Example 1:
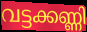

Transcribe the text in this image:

വട്ടക്കണ്ണി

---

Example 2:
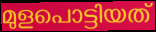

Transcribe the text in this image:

മുളപൊട്ടിയത്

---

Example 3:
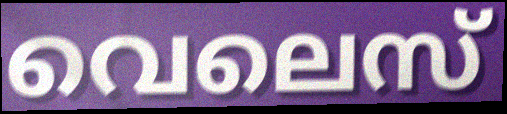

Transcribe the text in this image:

വെലെസ്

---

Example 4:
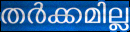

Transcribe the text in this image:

തർക്കമില്ല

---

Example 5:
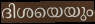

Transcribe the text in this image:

ദിശയെയും